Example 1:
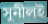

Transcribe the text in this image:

সুনীলই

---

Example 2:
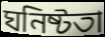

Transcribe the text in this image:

ঘনিষ্টতা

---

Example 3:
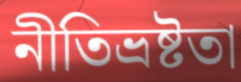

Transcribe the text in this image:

নীতিভ্রষ্টতা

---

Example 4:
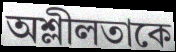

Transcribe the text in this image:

অশ্লীলতাকে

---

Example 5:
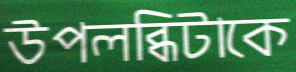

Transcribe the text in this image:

উপলব্ধিটাকে